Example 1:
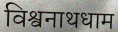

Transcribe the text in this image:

विश्वनाथधाम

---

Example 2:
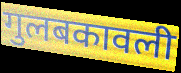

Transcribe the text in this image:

गुलबकावली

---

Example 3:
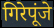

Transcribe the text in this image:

गिरेपूंजे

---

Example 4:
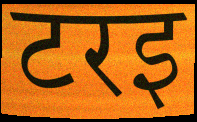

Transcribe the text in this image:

टरइ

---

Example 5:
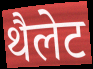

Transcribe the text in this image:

थैलेट